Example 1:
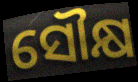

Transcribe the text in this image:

ସୌକ୍ଷ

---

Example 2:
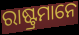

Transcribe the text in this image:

ରାଷ୍ଟ୍ରମାନେ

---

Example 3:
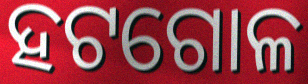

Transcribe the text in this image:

ହଟଗୋଳ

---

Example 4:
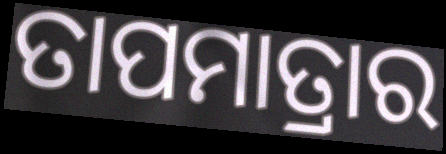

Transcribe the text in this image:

ତାପମାତ୍ରାର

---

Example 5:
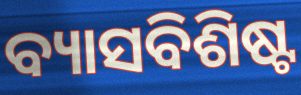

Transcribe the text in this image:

ବ୍ୟାସବିଶିଷ୍ଟ